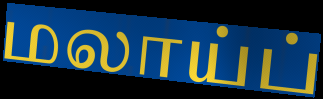
மலாய்ப்